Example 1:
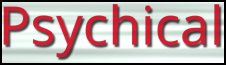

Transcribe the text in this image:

Psychical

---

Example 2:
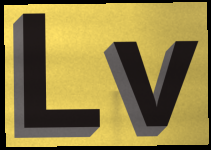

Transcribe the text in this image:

Lv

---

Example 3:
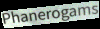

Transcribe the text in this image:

Phanerogams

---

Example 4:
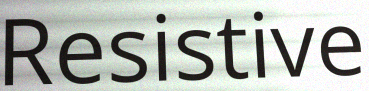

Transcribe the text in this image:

Resistive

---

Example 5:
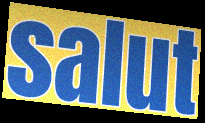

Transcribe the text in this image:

salut